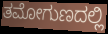
ತಮೋಗುಣದಲ್ಲಿ